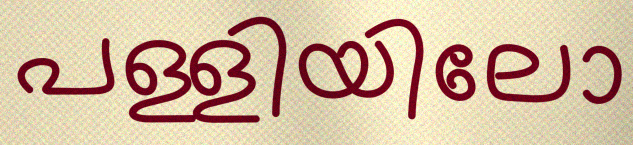
പള്ളിയിലോ